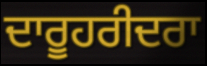
ਦਾਰੂਹਰੀਦਰਾ